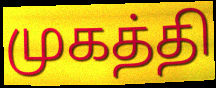
முகத்தி